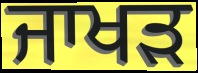
ਜਾਖੜ